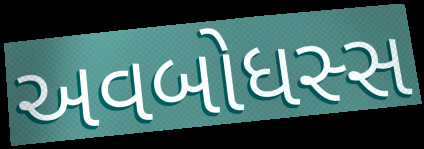
અવબોધસ્સ